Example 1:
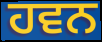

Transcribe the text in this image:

ਹਵਨ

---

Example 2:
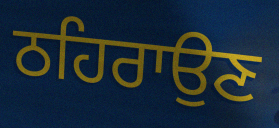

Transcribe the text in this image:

ਠਹਿਰਾਉਣ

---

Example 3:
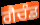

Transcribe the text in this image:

ਗੈਚੰਡ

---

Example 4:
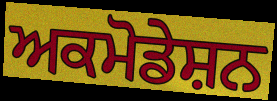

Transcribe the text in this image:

ਅਕਮੋਡੇਸ਼ਨ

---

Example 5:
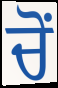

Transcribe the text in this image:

ਚੋਂ